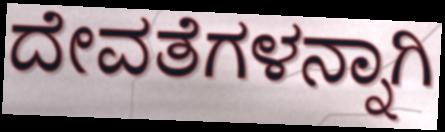
ದೇವತೆಗಳನ್ನಾಗಿ